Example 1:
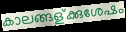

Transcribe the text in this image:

കാലങ്ങള്ക്കുശേഷം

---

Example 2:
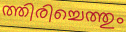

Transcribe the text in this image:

ത്തിരിച്ചെത്തും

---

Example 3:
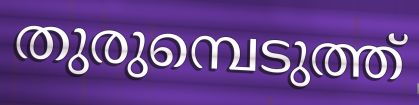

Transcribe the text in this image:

തുരുമ്പെടുത്ത്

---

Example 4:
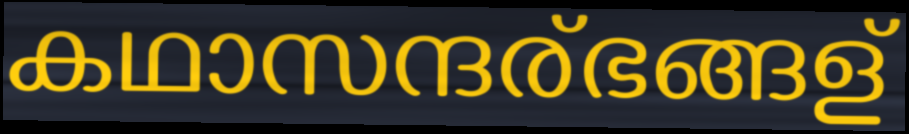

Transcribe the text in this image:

കഥാസന്ദര്ഭങ്ങള്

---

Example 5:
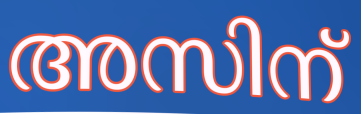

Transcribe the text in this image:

അസിന്